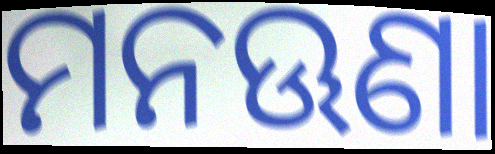
ମନଊଣା